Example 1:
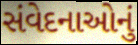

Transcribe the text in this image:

સંવેદનાઓનું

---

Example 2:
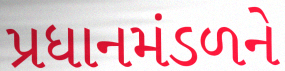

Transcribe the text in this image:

પ્રધાનમંડળને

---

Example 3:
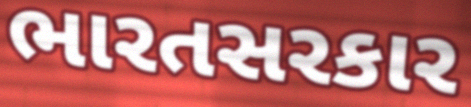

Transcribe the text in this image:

ભારતસરકાર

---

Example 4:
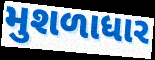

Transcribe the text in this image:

મુશળાધાર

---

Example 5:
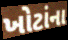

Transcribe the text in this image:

ખોટાંના